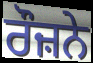
ਰੌਜ਼ਨੇ